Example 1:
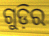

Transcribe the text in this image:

ଗୁଡ଼ିର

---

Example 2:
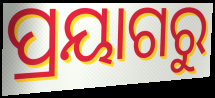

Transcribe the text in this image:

ପ୍ରୟାଗରୁ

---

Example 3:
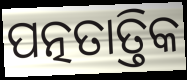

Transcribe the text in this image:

ପତ୍ନତାତ୍ତିକ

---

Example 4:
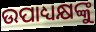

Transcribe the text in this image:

ଉପାଧ୍ୟକ୍ଷଙ୍କୁ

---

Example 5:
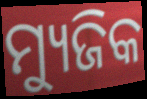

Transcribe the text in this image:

ମ୍ୟୁଜିକ